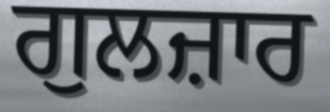
ਗੁਲਜ਼ਾਰ